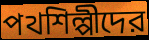
পথশিল্পীদের